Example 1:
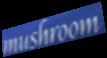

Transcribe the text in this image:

mushroom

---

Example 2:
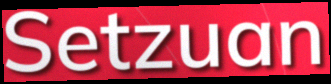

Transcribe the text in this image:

Setzuan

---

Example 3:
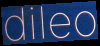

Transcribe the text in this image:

dileo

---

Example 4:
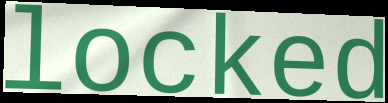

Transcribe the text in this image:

locked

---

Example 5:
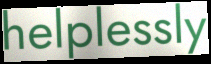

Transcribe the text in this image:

helplessly